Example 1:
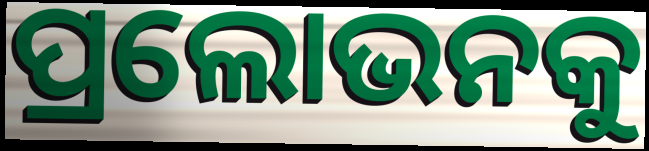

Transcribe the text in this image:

ପ୍ରଲୋଭନକୁ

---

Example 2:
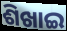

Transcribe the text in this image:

ଶିଖାଇ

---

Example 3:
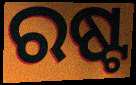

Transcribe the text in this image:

ରଷ୍ଟ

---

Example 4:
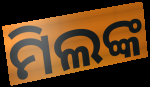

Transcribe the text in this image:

ମିଲଙ୍କ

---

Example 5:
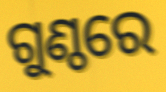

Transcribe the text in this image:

ଗୁଣ୍ଠରେ